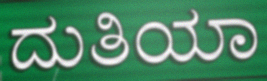
ದುತಿಯಾ